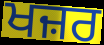
ਖਜ਼ਰ